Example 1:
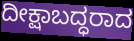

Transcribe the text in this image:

ದೀಕ್ಷಾಬದ್ಧರಾದ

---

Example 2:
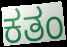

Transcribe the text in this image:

ಕತಂ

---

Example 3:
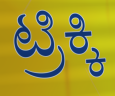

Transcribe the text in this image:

ಟ್ರಿಕ್ಕಿ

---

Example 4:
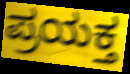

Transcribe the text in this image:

ಪ್ರಯಕ್ತ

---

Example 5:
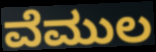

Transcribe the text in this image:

ವೆಮುಲ